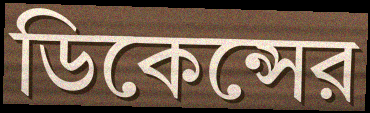
ডিকেন্সের